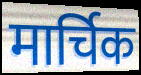
मार्चिक